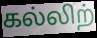
கல்லிற்